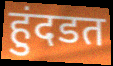
हुंदडत